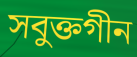
সবুক্তগীন